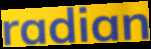
radian